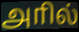
அரில்